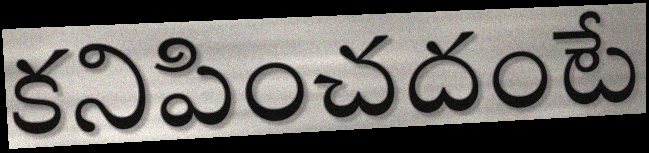
కనిపించదంటే